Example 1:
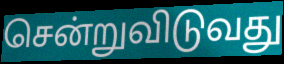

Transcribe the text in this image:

சென்றுவிடுவது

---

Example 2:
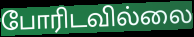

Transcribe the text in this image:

போரிடவில்லை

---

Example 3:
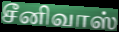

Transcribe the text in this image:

சீனிவாஸ்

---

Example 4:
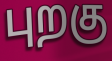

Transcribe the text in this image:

புறகு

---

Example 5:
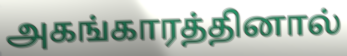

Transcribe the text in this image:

அகங்காரத்தினால்